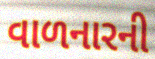
વાળનારની